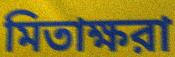
মিতাক্ষরা